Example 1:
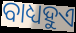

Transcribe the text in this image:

ବାଧ୍ୟହୁଏ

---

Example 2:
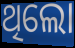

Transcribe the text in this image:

ଥିଲୋ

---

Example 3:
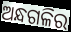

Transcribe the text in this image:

ଅନ୍ଧଗଳିର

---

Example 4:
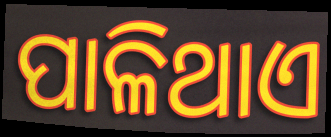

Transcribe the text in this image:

ପାଳିଥାଏ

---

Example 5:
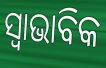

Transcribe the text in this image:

ସ୍ଵାଭାବିକ